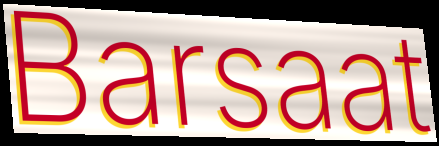
Barsaat